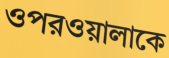
ওপরওয়ালাকে